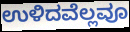
ಉಳಿದವೆಲ್ಲವೂ